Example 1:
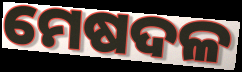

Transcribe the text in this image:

ମେଷଦଳ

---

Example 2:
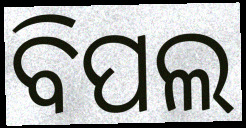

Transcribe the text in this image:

ବିପଲ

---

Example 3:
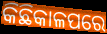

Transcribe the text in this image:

କିଛିକାଳପରେ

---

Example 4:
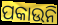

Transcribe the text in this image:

ପକାଉନି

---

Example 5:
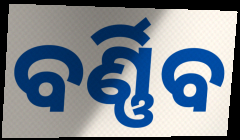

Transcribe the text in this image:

ବର୍ଣ୍ଣିବ